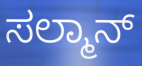
ಸಲ್ಮಾನ್